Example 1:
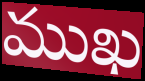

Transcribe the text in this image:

ముఖ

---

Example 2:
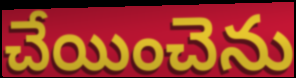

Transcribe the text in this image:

చేయించెను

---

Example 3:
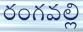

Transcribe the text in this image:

రంగవల్లి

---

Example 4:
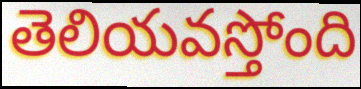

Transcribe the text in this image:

తెలియవస్తోంది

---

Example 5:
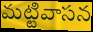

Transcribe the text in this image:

మట్టివాసన